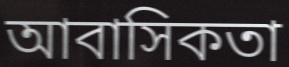
আবাসিকতা